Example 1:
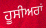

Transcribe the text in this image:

ਹੂਸੀਅਰਾਂ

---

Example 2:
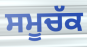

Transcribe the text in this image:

ਸਮੂਚੱਕ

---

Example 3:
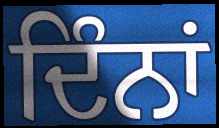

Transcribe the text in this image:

ਦਿੰਨਾਂ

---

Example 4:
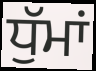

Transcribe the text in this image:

ਧੁੱਮਾਂ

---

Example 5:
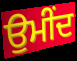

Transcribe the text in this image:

ਉਮੀਂਦ